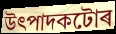
উৎপাদকটোৰ